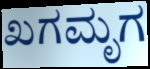
ಖಗಮೃಗ